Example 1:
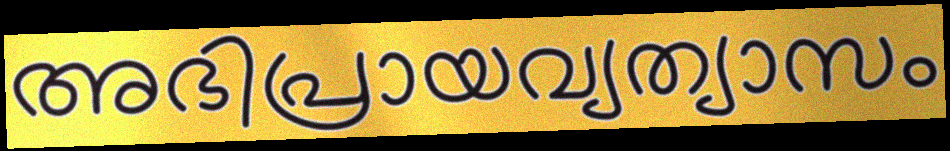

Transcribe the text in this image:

അഭിപ്രായവ്യത്യാസം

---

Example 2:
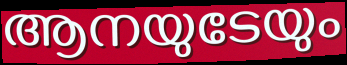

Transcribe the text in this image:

ആനയുടേയും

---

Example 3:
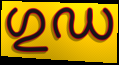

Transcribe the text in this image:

ഗുഡ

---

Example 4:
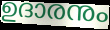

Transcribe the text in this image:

ഉദാരനും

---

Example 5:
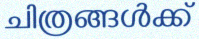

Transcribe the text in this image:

ചിത്രങ്ങൾക്ക്